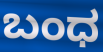
ಬಂಧ